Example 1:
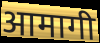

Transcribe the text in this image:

आमागी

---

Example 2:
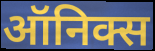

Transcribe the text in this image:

ऑनिक्स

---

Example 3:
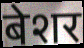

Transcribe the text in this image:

बेशर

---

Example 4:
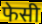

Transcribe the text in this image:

फेसी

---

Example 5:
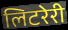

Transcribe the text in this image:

लिटरेरी